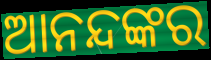
ଆନନ୍ଦଙ୍କର